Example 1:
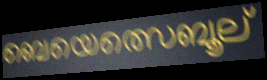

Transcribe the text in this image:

ബെയെത്സെബൂല്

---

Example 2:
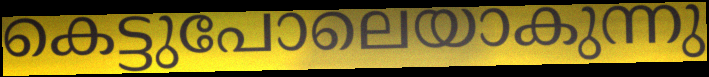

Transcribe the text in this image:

കെട്ടുപോലെയാകുന്നു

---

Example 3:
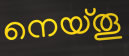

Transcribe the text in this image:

നെയ്തൂ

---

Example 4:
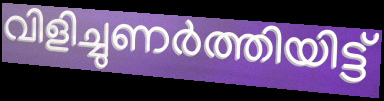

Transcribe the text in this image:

വിളിച്ചുണർത്തിയിട്ട്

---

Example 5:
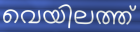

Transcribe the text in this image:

വെയിലത്ത്